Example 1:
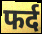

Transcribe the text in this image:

फर्द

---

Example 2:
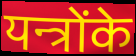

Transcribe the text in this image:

यन्त्रोंके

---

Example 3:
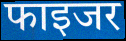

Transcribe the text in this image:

फाइजर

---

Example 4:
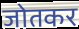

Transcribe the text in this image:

जोतकर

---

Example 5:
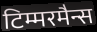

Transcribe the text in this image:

टिम्मरमैन्स